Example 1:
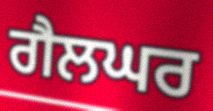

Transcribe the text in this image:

ਗੈਲਘਰ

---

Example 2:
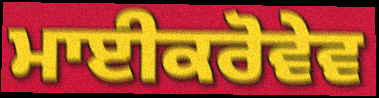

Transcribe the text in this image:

ਮਾਈਕਰੋਵੇਵ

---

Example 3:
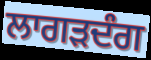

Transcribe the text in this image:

ਲਾਗੜਦੰਗ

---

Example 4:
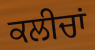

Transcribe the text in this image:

ਕਲੀਚਾਂ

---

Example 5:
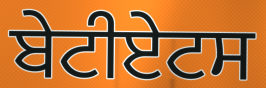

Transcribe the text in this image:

ਬੇਟੀਏਟਸ